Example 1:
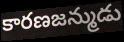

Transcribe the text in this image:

కారణజన్ముడు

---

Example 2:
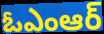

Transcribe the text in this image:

ఓఎంఆర్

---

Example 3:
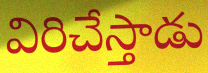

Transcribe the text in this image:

విరిచేస్తాడు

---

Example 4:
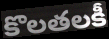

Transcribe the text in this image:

కొలతలకీ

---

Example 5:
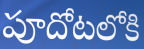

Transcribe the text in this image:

పూదోటలోకి